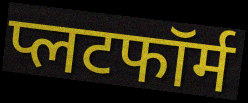
प्लटफॉर्म